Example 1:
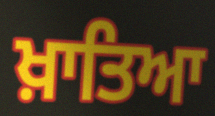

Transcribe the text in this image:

ਖ਼ਾਤਿਆ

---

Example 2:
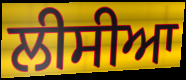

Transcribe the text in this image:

ਲੀਸੀਆ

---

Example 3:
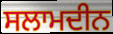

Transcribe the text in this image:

ਸਲਾਮਦੀਨ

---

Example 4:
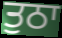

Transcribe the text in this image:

ਤੁਠਾ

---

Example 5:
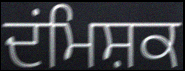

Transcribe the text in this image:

ਦਂਮਿਸ਼ਕ